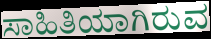
ಸಾಹಿತಿಯಾಗಿರುವ